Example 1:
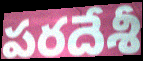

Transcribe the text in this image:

పరదేశీ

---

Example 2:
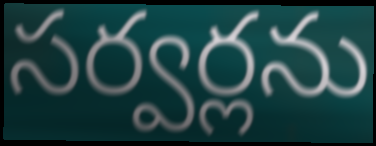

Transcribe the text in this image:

సర్వర్లను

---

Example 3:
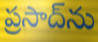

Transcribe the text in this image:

ప్రసాద్‌ను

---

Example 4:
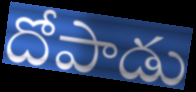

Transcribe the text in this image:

దోపాడు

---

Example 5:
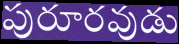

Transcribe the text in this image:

పురూరవుడు